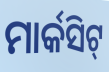
ମାର୍କସିଟ୍